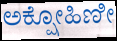
ಅಕ್ಷೋಹಿಣೀ